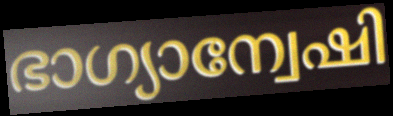
ഭാഗ്യാന്വേഷി